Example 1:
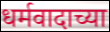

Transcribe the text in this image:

धर्मवादाच्या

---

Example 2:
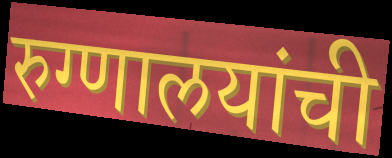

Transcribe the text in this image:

रुग्णालयांची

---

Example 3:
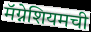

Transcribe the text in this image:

मॅग्नेशियमची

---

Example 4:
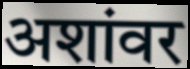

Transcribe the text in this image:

अशांवर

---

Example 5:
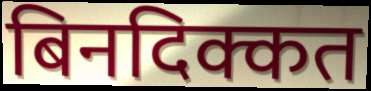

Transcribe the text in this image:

बिनदिक्कत